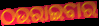
ଠଉରାଇବାର